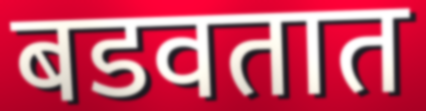
बडवतात